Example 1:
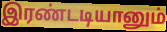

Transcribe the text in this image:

இரண்டடியானும்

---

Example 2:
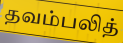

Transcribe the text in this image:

தவம்பலித்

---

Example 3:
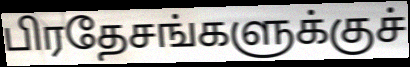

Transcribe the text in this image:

பிரதேசங்களுக்குச்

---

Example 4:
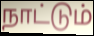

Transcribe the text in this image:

நாட்டும்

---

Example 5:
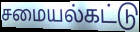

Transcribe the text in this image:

சமையல்கட்டு